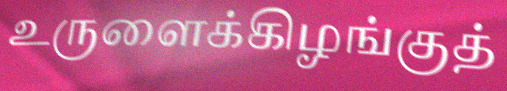
உருளைக்கிழங்குத்